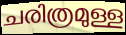
ചരിത്രമുള്ള